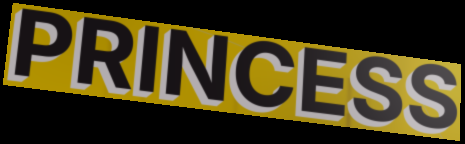
PRINCESS